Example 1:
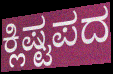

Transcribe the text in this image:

ಕ್ಲಿಷ್ಟಪದ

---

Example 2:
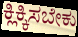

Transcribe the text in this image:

ಕ್ಲಿಕ್ಕಿಸಬೇಕು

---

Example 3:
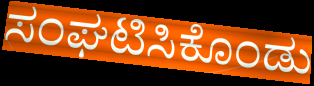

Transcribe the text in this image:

ಸಂಘಟಿಸಿಕೊಂಡು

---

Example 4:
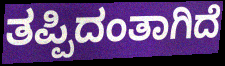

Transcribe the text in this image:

ತಪ್ಪಿದಂತಾಗಿದೆ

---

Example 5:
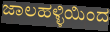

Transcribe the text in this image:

ಜಾಲಹಳ್ಳಿಯಿಂದ